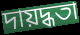
দায়দ্ধতা